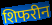
शिफरीन